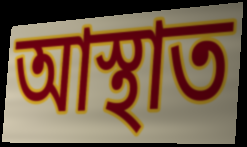
আস্থাত